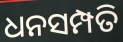
ଧନସମ୍ପତି